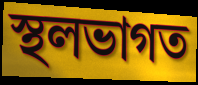
স্থলভাগত